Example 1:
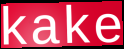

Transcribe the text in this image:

kake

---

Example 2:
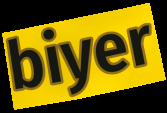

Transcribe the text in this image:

biyer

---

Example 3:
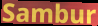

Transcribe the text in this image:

Sambur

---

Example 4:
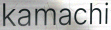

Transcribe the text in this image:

kamachi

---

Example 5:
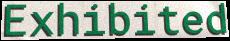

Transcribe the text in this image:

Exhibited